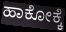
ಹಾಕೋಕ್ಕೆ